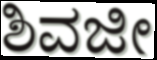
ಶಿವಜೀ